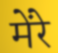
मेंरे